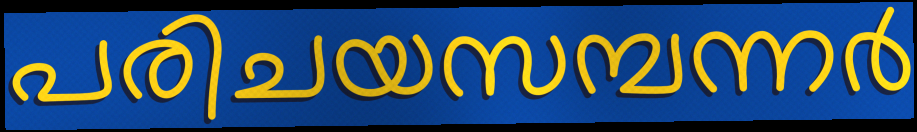
പരിചയസമ്പന്നർ